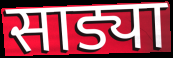
साड्या